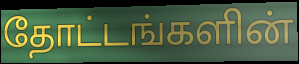
தோட்டங்களின்